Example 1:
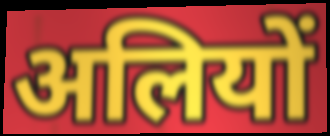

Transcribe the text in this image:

अलियों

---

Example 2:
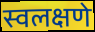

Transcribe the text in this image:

स्वलक्षणे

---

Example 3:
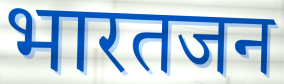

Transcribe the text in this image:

भारतजन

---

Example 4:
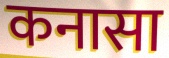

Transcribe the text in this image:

कनासा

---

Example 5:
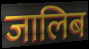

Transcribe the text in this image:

जालिब